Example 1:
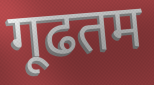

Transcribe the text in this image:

गूढतम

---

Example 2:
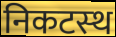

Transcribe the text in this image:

निकटस्‍थ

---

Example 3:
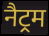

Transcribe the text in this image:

नैट्रम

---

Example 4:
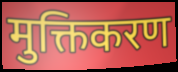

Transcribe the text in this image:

मुक्तिकरण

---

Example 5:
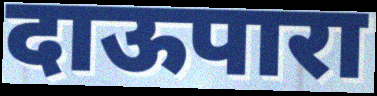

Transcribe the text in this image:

दाऊपारा